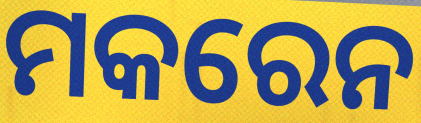
ମକରେନ